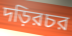
দড়িরচর